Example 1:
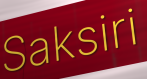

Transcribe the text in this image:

Saksiri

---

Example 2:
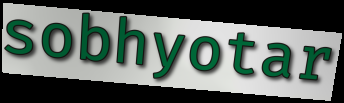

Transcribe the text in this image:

sobhyotar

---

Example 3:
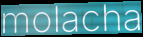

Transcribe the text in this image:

molacha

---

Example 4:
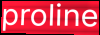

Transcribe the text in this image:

proline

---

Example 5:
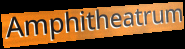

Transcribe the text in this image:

Amphitheatrum